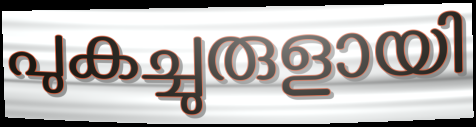
പുകച്ചുരുളായി